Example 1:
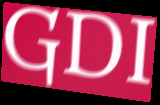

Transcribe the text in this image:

GDI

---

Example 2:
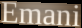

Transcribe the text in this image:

Emani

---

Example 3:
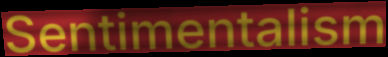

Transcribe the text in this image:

Sentimentalism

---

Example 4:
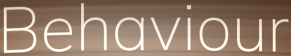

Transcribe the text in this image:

Behaviour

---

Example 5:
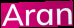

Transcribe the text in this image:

Aran